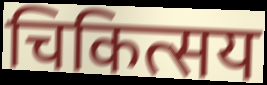
चिकित्सय